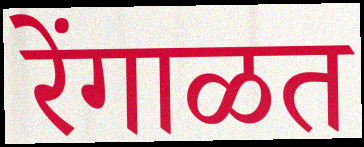
रेंगाळत